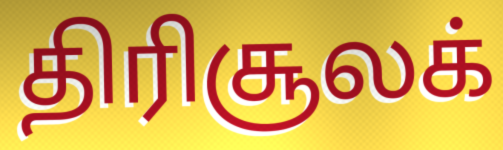
திரிசூலக்